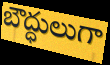
బౌద్ధులుగా